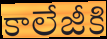
కాలేజీకి